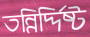
তন্নির্দ্দিষ্ট